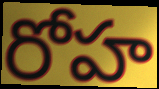
రోహ